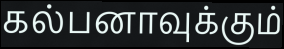
கல்பனாவுக்கும்